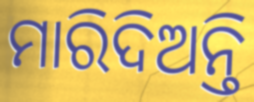
ମାରିଦିଅନ୍ତି